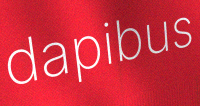
dapibus